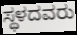
ಸ್ಥಳದವರು